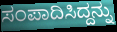
ಸಂಪಾದಿಸಿದ್ದನ್ನು